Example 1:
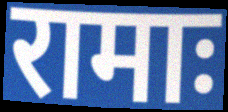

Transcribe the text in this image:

रामाः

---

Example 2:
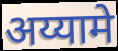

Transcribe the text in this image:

अय्यामे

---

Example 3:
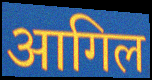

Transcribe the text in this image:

आगिल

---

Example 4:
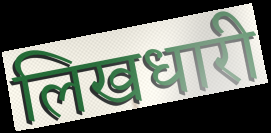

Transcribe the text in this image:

लिखधारी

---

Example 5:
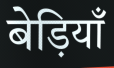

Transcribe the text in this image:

बेड़ियाँ